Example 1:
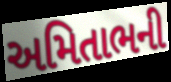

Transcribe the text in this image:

અમિતાભની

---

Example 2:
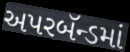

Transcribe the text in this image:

અપરબૅન્ડમાં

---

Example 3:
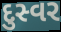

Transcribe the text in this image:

દુસ્વર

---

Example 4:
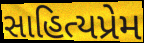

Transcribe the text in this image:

સાહિત્યપ્રેમ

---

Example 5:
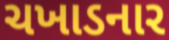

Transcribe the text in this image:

ચખાડનાર